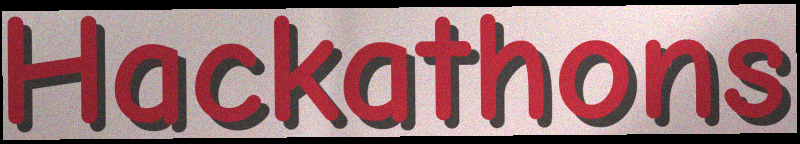
Hackathons